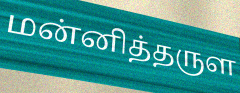
மன்னித்தருள